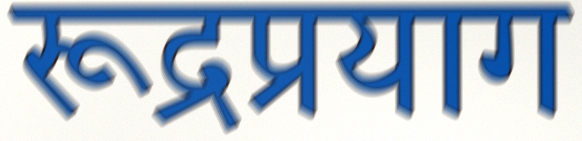
रूद्रप्रयाग